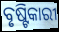
ବୃଷ୍ଟିକାରୀ